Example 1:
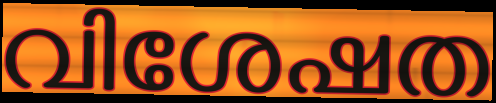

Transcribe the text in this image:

വിശേഷത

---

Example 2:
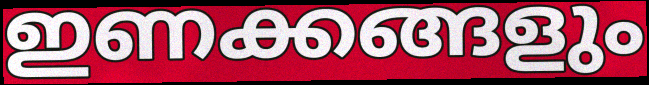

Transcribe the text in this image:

ഇണക്കങ്ങളും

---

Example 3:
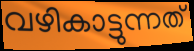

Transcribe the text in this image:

വഴികാട്ടുന്നത്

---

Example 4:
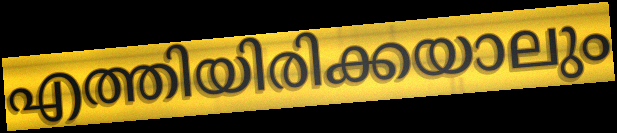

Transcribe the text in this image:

എത്തിയിരിക്കയാലും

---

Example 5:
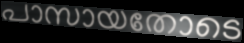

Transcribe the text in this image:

പാസായതോടെ